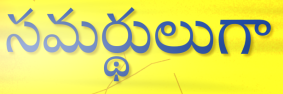
సమర్థులుగా